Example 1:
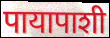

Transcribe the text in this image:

पायापाशी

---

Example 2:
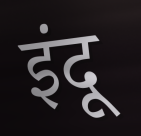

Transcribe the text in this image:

इंदू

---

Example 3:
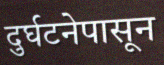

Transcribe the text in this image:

दुर्घटनेपासून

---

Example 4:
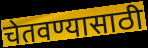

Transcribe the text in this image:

चेतवण्यासाठी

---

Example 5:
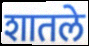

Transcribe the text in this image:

शातले